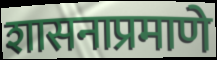
शासनाप्रमाणे